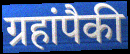
ग्रहांपैकी